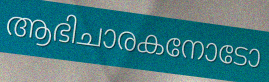
ആഭിചാരകനോടോ